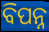
ବିପନ୍ନ